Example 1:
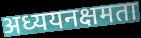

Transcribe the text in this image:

अध्ययनक्षमता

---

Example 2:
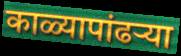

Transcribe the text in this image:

काळ्यापांढर्‍या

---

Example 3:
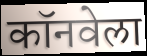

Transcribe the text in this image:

कॉनवेला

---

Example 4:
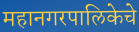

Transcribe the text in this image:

महानगरपालिकेचे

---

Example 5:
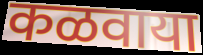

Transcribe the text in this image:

कळवाया